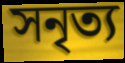
সনৃত্য